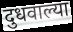
दुधवाल्या